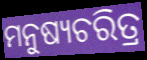
ମନୁଷ୍ୟଚରିତ୍ର